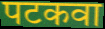
पटकवा